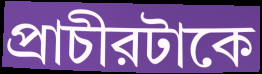
প্রাচীরটাকে